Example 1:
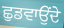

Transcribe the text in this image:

ਛੁਡਵਾਉਂਦੇ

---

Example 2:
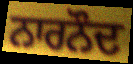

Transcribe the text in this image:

ਨਾਰਨੌਦ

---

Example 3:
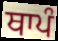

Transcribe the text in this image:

ਥਾਪੰ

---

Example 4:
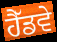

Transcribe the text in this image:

ਹੈੱਡਵੇ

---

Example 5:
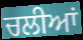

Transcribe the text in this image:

ਚਲੀਆਂ